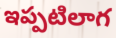
ఇప్పటిలాగ